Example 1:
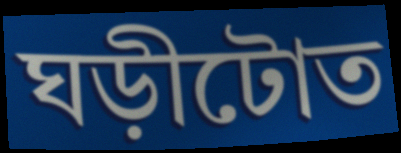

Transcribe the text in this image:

ঘড়ীটোত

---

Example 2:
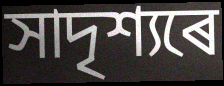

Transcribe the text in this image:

সাদৃশ্যৰে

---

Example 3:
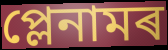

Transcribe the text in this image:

প্লেনামৰ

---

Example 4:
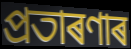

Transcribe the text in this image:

প্ৰতাৰণাৰ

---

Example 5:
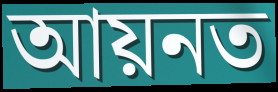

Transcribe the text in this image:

আয়নত